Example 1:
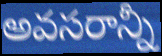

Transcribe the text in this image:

అవసరాన్నీ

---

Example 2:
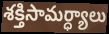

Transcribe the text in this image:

శక్తిసామర్ధ్యాలు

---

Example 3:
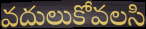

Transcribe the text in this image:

వదులుకోవలసి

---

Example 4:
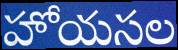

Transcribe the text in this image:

హోయసల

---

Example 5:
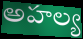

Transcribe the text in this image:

అహల్య